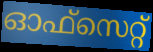
ഓഫ്സെറ്റ്